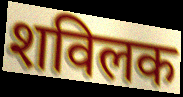
शविलक